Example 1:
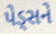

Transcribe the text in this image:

પેડ્સને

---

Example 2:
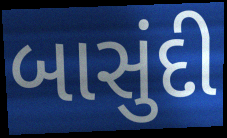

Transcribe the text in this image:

બાસુંદી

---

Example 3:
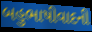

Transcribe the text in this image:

બહુભાષીવાદની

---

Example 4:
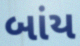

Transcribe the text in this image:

બાંય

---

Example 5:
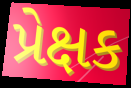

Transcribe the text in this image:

પ્રેક્ષક